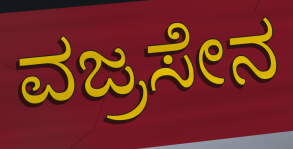
ವಜ್ರಸೇನ